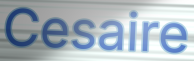
Cesaire